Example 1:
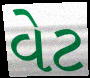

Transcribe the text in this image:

વેટ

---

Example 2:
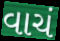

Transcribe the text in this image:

વાચં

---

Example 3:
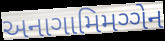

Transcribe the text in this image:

અનાગામિમગ્ગેન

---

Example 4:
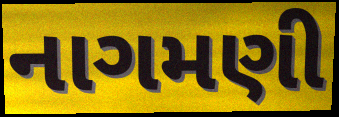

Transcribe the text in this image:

નાગમણી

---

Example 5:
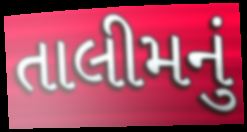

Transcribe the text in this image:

તાલીમનું